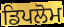
ਡਿਪਲੋਮ